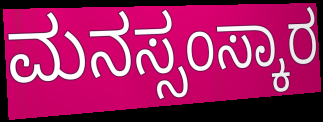
ಮನಸ್ಸಂಸ್ಕಾರ